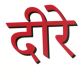
दीरे